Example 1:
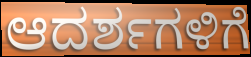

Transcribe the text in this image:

ಆದರ್ಶಗಳಿಗೆ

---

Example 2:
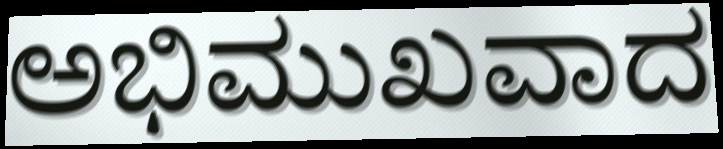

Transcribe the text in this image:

ಅಭಿಮುಖವಾದ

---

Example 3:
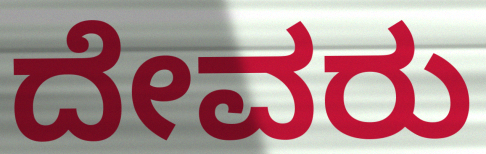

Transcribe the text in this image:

ದೇವರು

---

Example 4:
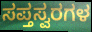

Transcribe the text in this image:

ಸಪ್ತಸ್ವರಗಳ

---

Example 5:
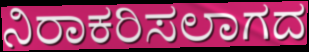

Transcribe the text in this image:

ನಿರಾಕರಿಸಲಾಗದ